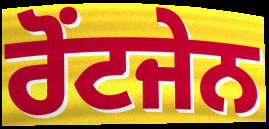
ਰੋਂਟਜੇਨ